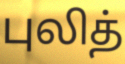
புலித்